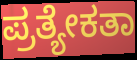
ಪ್ರತ್ಯೇಕತಾ